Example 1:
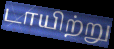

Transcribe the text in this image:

டாயிற்று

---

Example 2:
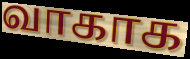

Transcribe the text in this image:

வாகாக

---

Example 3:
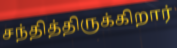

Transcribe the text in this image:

சந்தித்திருக்கிறார்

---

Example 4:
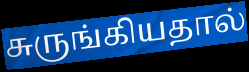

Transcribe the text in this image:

சுருங்கியதால்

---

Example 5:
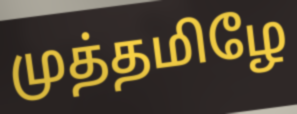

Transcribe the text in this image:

முத்தமிழே